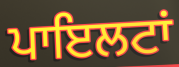
ਪਾਇਲਟਾਂ